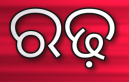
ରଢ଼